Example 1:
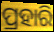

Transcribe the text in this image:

ପ୍ରହାରି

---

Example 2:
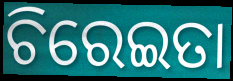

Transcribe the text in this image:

ଚିରେଇତା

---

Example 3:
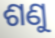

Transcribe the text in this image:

ଶଣୁ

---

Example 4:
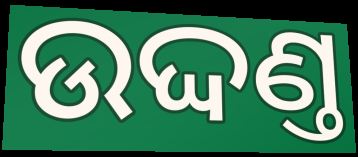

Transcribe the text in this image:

ଉଦ୍ଦଣ୍ତ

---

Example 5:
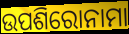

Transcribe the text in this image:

ଉପଶିରୋନାମା